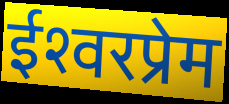
ईश्वरप्रेम